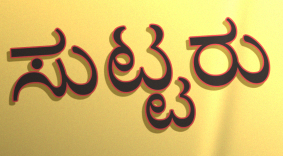
ಸುಟ್ಟರು